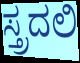
ಸ್ತ್ರದಲಿ